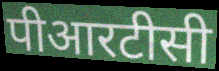
पीआरटीसी